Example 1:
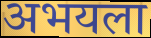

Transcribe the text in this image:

अभयला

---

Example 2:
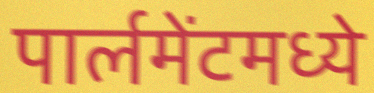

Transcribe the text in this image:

पार्लमेंटमध्ये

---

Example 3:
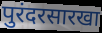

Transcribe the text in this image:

पुरंदरसारखा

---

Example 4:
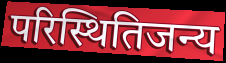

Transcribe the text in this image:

परिस्थितिजन्य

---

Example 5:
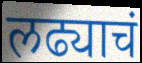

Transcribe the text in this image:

लढ्याचं